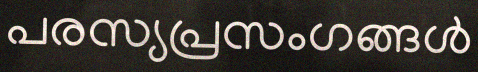
പരസ്യപ്രസംഗങ്ങൾ